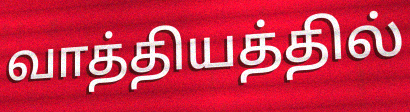
வாத்தியத்தில்